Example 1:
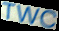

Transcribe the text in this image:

TWC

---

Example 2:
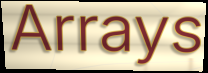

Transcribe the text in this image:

Arrays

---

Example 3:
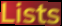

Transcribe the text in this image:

Lists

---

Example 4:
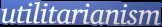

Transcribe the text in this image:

utilitarianism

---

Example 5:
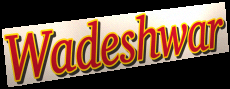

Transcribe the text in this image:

Wadeshwar